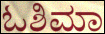
ಓಶಿಮಾ